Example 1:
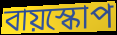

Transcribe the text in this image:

বায়স্কোপ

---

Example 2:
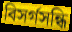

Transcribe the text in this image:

বিসর্গসন্ধি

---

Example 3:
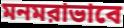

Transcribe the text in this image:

মনমরাভাবে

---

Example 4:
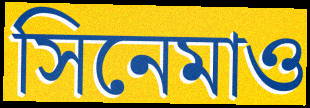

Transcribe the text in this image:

সিনেমাও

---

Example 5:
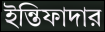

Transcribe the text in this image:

ইন্তিফাদার